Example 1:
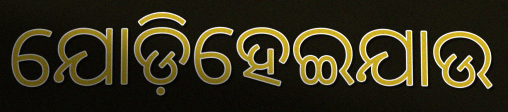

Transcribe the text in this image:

ଯୋଡ଼ିହେଇଯାଉ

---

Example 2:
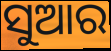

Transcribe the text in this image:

ସୁଆର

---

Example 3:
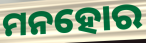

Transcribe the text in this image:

ମନହୋର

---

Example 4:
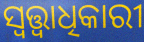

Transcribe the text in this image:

ସ୍ବତ୍ତ୍ବାଧିକାରୀ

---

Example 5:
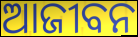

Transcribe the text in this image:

ଆଜୀବନ